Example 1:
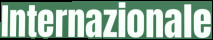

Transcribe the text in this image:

Internazionale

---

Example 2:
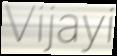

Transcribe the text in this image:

Vijayi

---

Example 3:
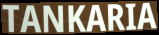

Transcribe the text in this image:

TANKARIA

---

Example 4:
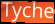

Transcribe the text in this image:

Tyche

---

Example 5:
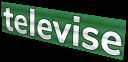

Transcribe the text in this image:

televise